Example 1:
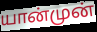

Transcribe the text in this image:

யான்முன்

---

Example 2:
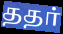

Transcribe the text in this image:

ததர்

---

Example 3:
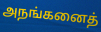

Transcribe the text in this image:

அநங்கனைத்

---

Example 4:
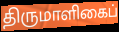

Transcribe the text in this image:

திருமாளிகைப்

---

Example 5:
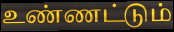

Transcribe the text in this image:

உண்ணட்டும்